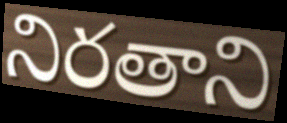
నిరతాని